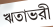
ঋতাভরী